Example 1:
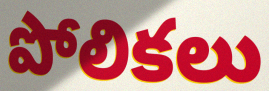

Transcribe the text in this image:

పోలికలు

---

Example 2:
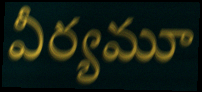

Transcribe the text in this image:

వీర్యమూ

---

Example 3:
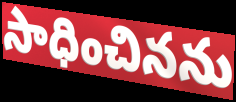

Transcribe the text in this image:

సాధించినను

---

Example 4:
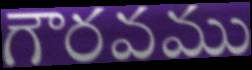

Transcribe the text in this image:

గౌరవము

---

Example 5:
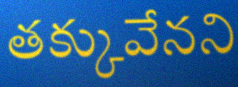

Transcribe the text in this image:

తక్కువేనని